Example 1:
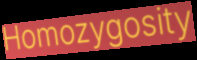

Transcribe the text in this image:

Homozygosity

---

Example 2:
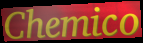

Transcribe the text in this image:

Chemico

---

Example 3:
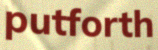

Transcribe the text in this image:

putforth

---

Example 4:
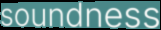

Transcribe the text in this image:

soundness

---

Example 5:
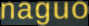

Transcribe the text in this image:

naguo